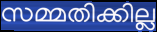
സമ്മതിക്കില്ല